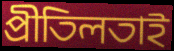
প্ৰীতিলতাই